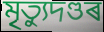
মৃত্যুদণ্ডৰ